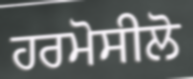
ਹਰਮੋਸੀਲੋ